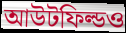
আউটফিল্ডও